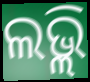
ଲଭ୍ଲି